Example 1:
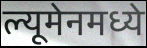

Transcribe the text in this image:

ल्यूमेनमध्ये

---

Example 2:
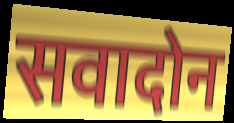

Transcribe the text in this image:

सवादोन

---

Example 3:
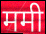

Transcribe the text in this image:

ममी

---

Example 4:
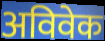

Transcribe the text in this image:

अविवेक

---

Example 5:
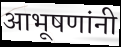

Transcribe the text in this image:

आभूषणांनी